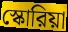
স্কোরিয়া